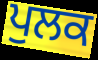
ਪੁਲਕ